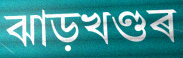
ঝাড়খণ্ডৰ